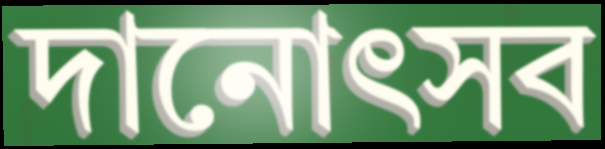
দানোৎসব